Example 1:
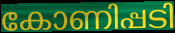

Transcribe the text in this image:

കോണിപ്പടി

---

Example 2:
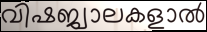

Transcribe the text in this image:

വിഷജ്വാലകളാൽ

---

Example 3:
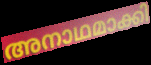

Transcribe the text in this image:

അനാഥമാക്കി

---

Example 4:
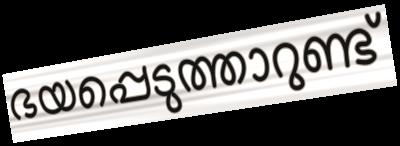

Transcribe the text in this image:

ഭയപ്പെടുത്താറുണ്ട്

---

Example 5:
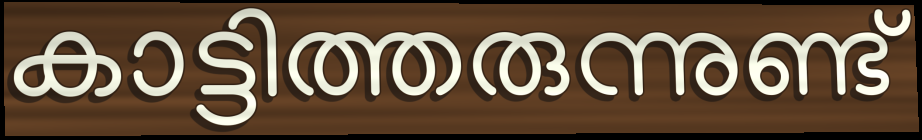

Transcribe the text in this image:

കാട്ടിത്തരുന്നുണ്ട്